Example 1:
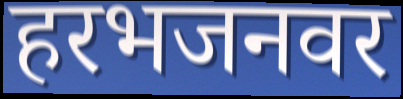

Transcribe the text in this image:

हरभजनवर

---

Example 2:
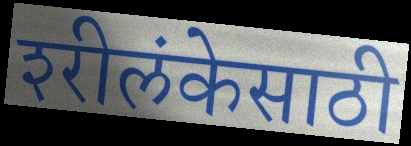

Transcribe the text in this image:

श्रीलंकेसाठी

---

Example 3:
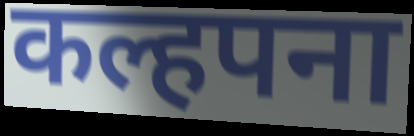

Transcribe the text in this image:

कल्हपना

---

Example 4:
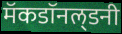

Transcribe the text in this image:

मॅकडॉनल्डनी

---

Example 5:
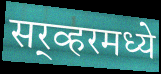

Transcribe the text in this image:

सर्व्हरमध्ये